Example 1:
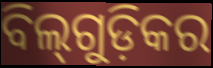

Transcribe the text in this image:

ବିଲ୍‌ଗୁଡ଼ିକର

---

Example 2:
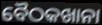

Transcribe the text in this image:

ବୈଠକଖାନା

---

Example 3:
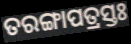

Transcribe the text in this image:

ତରଙ୍ଗାପତ୍ରସ୍ତଃ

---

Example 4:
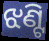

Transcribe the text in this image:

ଝଣ୍ଟି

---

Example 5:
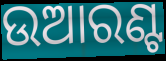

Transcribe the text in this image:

ଉଆରଣ୍ଟ